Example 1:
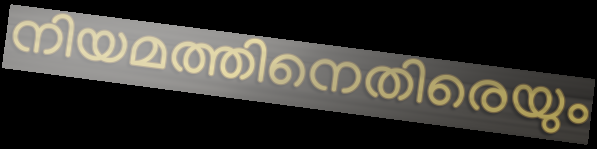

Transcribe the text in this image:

നിയമത്തിനെതിരെയും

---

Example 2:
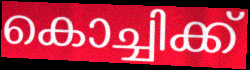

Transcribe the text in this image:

കൊച്ചിക്ക്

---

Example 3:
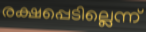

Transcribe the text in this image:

രക്ഷപ്പെടില്ലെന്ന്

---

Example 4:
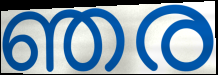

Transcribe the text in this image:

ഞര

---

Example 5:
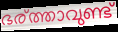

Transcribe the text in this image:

ഭര്ത്താവുണ്ട്